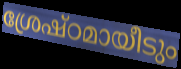
ശ്രേഷ്ഠമായീടും